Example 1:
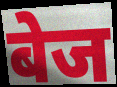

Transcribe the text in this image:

बेज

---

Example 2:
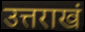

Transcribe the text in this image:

उत्तराखं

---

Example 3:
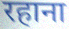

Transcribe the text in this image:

रहाना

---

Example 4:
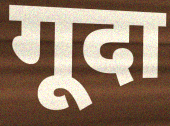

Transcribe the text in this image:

गूदा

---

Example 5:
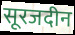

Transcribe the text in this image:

सूरजदीन